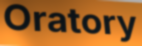
Oratory